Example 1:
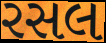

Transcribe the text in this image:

રસલ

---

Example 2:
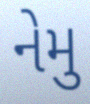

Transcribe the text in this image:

નેમુ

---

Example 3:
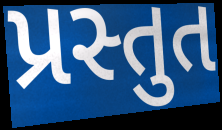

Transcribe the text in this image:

પ્રસ્તુત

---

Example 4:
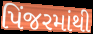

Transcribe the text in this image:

પિંજરમાંથી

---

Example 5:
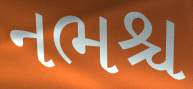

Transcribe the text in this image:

નભશ્ચ